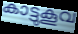
കാട്ടുകൂവ